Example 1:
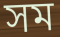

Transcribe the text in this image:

সম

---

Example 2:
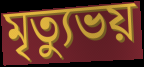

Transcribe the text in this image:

মৃত্যুভয়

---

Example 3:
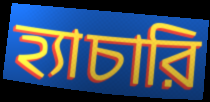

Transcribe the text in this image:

হ্যাচারি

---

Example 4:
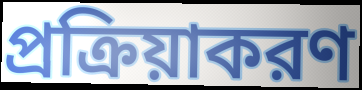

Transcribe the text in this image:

প্রক্রিয়াকরণ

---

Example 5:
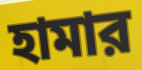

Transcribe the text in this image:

হামার